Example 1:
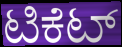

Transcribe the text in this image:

ಟಿಕೆಟ್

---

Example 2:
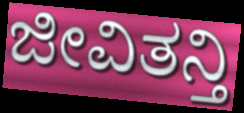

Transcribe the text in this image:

ಜೀವಿತನ್ತಿ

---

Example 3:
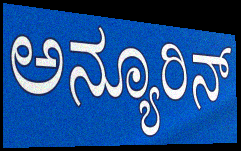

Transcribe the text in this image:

ಅನ್ಯೂರಿನ್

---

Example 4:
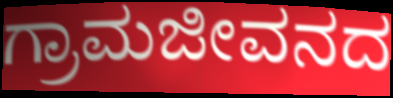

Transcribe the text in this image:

ಗ್ರಾಮಜೀವನದ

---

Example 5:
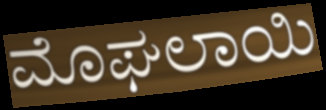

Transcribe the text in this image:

ಮೊಘಲಾಯಿ